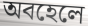
অবহেলে